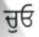
ਚੁਓ